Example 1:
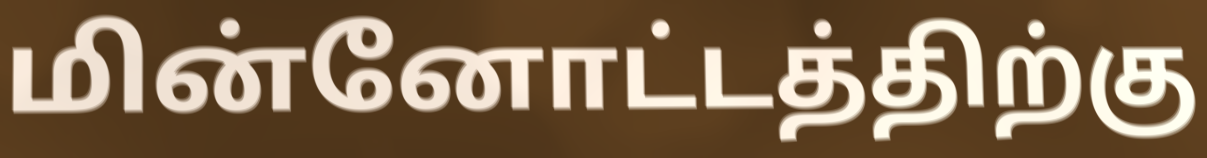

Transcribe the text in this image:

மின்னோட்டத்திற்கு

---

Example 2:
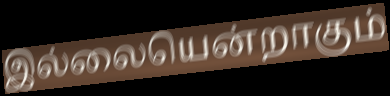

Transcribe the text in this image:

இல்லையென்றாகும்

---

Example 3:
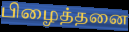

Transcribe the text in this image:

பிழைத்தனை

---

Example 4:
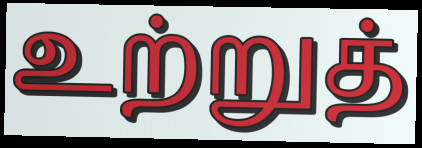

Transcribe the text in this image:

உற்றுத்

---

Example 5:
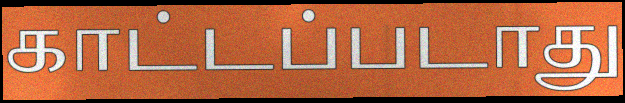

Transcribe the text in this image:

காட்டப்படாது